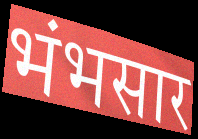
भंभसार